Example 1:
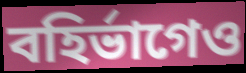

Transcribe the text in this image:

বহির্ভাগেও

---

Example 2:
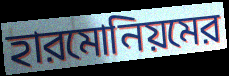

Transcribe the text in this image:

হারমোনিয়মের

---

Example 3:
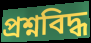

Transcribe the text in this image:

প্রশ্নবিদ্ধ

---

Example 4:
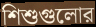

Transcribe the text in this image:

শিশুগুলোর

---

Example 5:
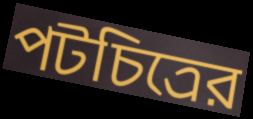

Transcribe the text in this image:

পটচিত্রের